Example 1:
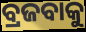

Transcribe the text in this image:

ବ୍ରଜବାକୁ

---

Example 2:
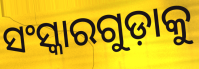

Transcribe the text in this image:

ସଂସ୍କାରଗୁଡ଼ାକୁ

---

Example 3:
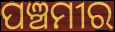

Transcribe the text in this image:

ପଞ୍ଚମୀର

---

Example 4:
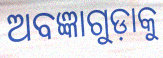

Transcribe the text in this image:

ଅବଜ୍ଞାଗୁଡ଼ାକୁ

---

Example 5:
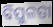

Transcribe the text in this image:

ବିପୁଳତା